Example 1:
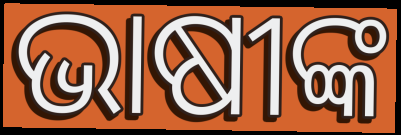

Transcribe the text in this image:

ଭାଷୀଙ୍କ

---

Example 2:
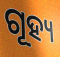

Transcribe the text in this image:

ଗୂହ୍ୟ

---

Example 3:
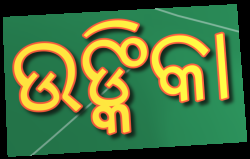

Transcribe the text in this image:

ଉଙ୍କିକା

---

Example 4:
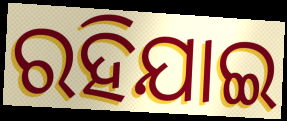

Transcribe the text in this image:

ରହିଯାଇ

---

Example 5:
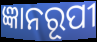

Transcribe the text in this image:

ଜ୍ଞାନରୂପୀ